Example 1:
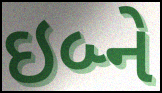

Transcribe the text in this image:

ઇબ્ને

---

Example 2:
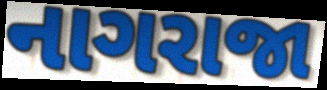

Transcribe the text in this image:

નાગરાજા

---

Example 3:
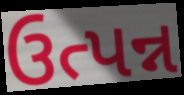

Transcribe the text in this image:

ઉત્પન્ન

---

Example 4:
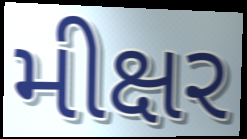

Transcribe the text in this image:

મીક્ષર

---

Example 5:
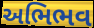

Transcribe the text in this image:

અભિભવ